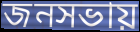
জনসভায়